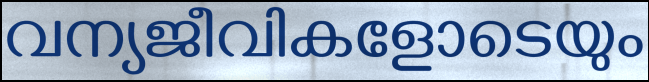
വന്യജീവികളോടെയും